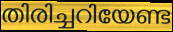
തിരിച്ചറിയേണ്ട